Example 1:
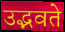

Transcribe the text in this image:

उद्भवते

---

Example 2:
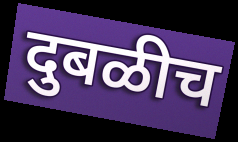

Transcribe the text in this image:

दुबळीच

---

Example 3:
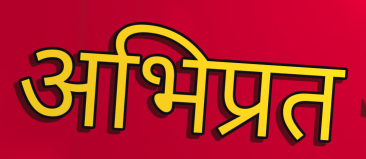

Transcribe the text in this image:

अभिप्रत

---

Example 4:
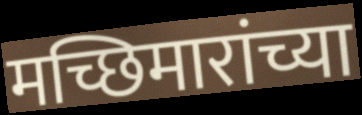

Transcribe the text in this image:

मच्छिमारांच्या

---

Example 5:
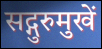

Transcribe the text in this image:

सद्गुरुमुखें